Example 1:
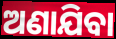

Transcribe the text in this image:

ଅଣାଯିବା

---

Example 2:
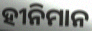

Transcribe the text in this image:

ହୀନିମାନ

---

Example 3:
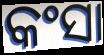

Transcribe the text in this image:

କଂସା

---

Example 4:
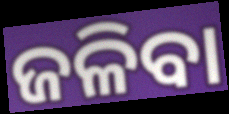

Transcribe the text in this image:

ଜଳିବା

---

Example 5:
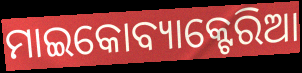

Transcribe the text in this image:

ମାଇକୋବ୍ୟାକ୍ଟେରିଆ